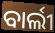
ବାର୍ଲୀ